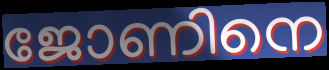
ജോണിനെ